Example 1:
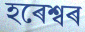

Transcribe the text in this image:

হৰেশ্বৰ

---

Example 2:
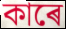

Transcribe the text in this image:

কাৰে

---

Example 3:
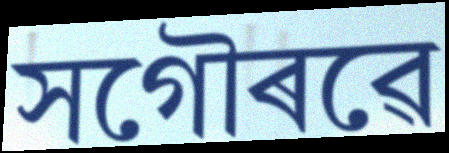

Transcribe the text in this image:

সগৌৰৱে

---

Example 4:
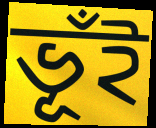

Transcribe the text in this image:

ভূঁই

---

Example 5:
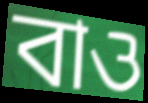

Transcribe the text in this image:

বাও